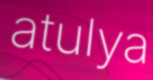
atulya